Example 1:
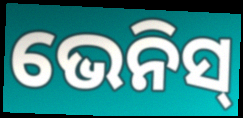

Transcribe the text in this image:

ଭେନିସ୍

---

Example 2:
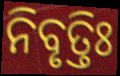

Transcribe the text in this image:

ନିବୃତ୍ତିଃ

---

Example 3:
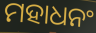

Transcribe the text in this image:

ମହାଧନଂ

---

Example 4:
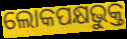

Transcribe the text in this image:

ଲୋକପକ୍ଷଭୁକ୍ତ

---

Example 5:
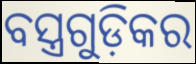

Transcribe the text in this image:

ବସ୍ତ୍ରଗୁଡ଼ିକର